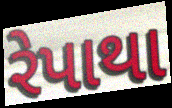
રેપાથા